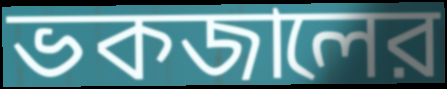
ভকজালের